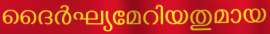
ദൈർഘ്യമേറിയതുമായ